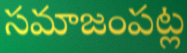
సమాజంపట్ల